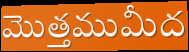
మొత్తముమీద